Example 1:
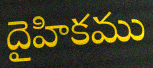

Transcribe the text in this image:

దైహికము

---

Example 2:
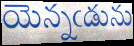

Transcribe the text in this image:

యెన్నఁడును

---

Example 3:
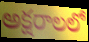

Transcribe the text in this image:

అక్షరాలలో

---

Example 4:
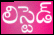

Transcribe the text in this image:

లిస్టెడ్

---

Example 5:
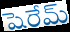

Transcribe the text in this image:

షెరేమ్